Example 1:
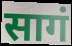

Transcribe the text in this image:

सागं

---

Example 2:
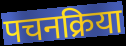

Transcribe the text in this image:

पचनक्रिया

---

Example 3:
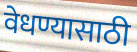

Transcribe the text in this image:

वेधण्यासाठी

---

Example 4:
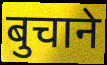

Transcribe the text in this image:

बुचाने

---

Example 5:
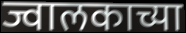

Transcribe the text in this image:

ज्वालकाच्या